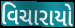
વિચારાયો